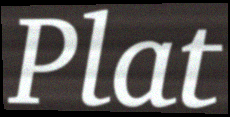
Plat